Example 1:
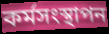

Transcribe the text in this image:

কৰ্মসংস্থাপন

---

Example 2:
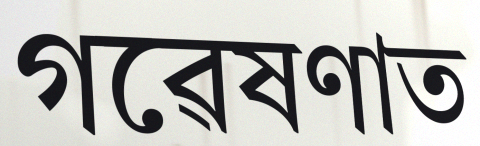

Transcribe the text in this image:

গৱেষণাত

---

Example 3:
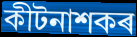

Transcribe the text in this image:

কীটনাশকৰ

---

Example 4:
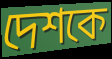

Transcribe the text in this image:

দেশকে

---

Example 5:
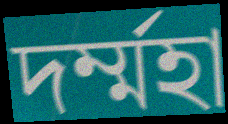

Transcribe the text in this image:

দৰ্ম্মহা